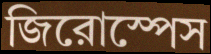
জিরোস্পেস